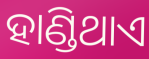
ହାଣ୍ଡିଥାଏ